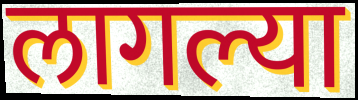
लागल्‍या